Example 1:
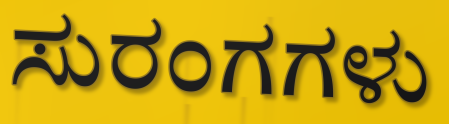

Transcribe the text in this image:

ಸುರಂಗಗಳು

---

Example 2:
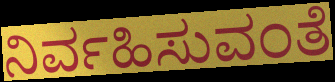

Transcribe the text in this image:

ನಿರ್ವಹಿಸುವಂತೆ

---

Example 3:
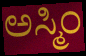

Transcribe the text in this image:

ಅಸ್ಮಿಂ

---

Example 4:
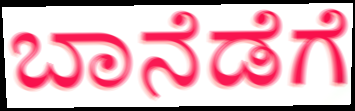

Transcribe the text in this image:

ಬಾನೆಡೆಗೆ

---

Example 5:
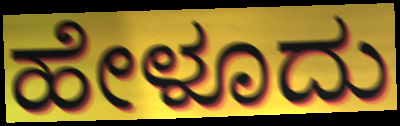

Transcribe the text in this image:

ಹೇಳೂದು